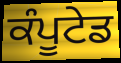
ਕੰਪੂਟੇਡ